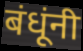
बंधूंनी